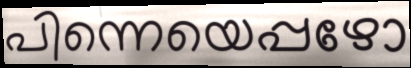
പിന്നെയെപ്പഴോ